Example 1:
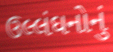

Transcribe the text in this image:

ઉલ્લંઘનોનું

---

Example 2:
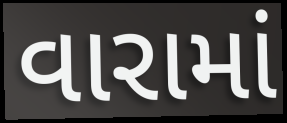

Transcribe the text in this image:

વારામાં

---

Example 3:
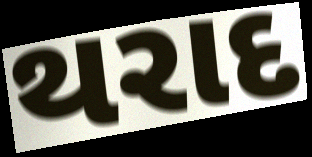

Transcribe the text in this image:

થરાદ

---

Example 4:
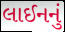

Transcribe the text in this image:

લાઈનનું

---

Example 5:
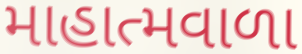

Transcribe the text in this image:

માહાત્મવાળા